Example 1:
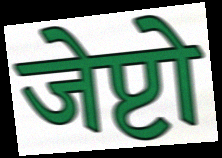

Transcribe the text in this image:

जेप्टो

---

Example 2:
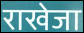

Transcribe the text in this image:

राखेजा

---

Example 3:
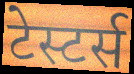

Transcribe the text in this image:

टेस्टर्स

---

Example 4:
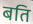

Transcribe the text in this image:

बति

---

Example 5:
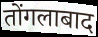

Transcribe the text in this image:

तोंगलाबाद